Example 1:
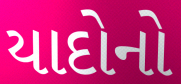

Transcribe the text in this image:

યાદોનો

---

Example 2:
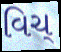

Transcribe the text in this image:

વિચ્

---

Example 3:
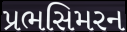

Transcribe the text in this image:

પ્રભસિમરન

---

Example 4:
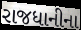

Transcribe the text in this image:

રાજધાનીના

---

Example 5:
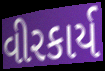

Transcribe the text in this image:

વીરકાર્ય